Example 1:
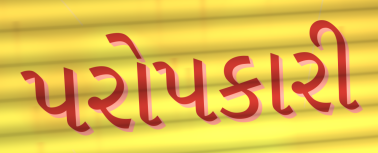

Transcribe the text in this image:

પરોપકારી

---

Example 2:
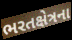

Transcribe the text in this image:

ભરતક્ષેત્રના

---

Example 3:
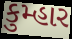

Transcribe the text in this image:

કુમ્હાર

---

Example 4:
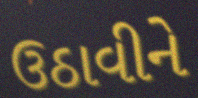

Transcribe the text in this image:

ઉઠાવીને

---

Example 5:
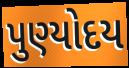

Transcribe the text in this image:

પુણ્યોદય